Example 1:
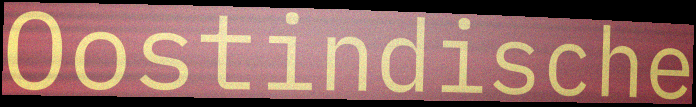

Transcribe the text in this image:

Oostindische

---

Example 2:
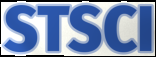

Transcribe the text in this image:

STSCI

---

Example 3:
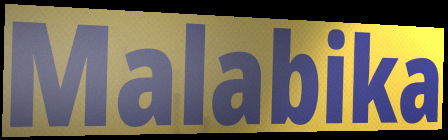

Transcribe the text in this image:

Malabika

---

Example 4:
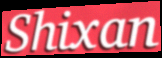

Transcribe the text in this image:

Shixan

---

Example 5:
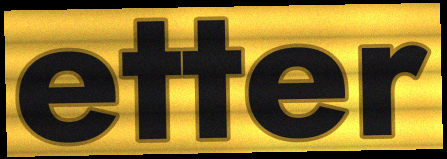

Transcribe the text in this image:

etter